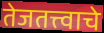
तेजतत्त्वाचे